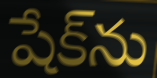
షేక్‌ను